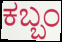
ಕಬ್ಬಂ